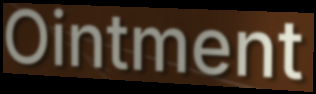
Ointment